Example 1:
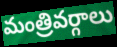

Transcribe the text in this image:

మంత్రివర్గాలు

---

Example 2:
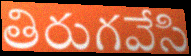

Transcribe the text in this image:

తిరుగవేసి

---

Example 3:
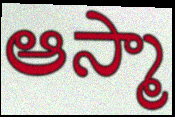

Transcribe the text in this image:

ఆస్మా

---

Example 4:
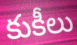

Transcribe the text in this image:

కుకీలు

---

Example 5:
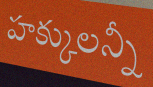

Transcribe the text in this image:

హక్కులన్నీ